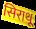
सिराथू